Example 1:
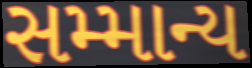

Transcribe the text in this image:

સમ્માન્ય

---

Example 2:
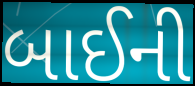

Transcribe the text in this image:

બાઈની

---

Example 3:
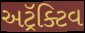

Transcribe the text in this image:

અટ્રૅક્ટિવ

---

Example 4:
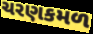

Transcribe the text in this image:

ચરણકમળ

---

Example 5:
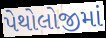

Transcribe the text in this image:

પેથોલોજીમાં